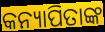
କନ୍ୟାପିତାଙ୍କ